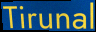
Tirunal